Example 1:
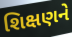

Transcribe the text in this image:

શિક્ષણને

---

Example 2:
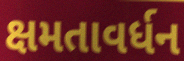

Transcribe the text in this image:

ક્ષમતાવર્ધન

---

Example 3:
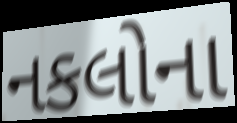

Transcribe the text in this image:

નકલોના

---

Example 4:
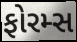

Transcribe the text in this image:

ફોરમ્સ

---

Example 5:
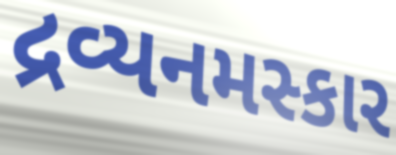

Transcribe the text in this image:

દ્રવ્યનમસ્કાર